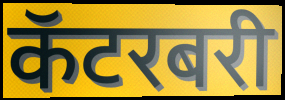
कॅटरबरी